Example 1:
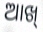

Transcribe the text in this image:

ଆଖ୍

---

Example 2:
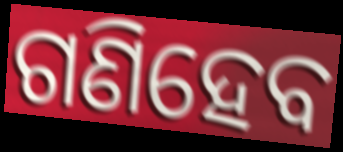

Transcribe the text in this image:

ଗଣିହେବ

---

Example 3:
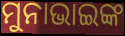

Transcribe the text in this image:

ମୁନାଭାଇଙ୍କ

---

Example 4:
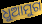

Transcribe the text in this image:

ଧୁଆମୁଗ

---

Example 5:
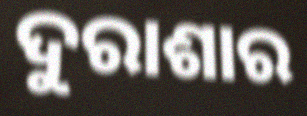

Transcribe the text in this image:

ଦୁରାଶାର